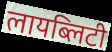
लायब्लिटी